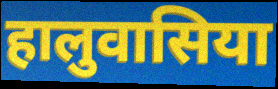
हालुवासिया